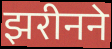
झरीनने